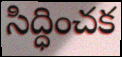
సిద్ధించక